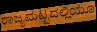
ರಾಜ್ಯಮಟ್ಟದಲ್ಲಿಯೂ